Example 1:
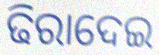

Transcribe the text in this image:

ଢିରାଦେଇ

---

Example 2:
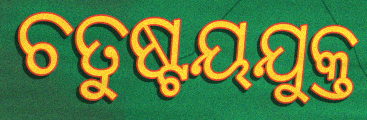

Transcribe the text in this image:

ଚତୁଷ୍ଟୟଯୁକ୍ତ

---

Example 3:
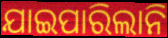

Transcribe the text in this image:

ଯାଇପାରିଲାନି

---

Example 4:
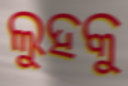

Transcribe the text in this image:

ଲୁହକୁ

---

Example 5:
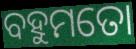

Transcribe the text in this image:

ବହୁମତୋ